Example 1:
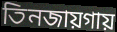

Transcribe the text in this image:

তিনজায়গায়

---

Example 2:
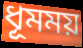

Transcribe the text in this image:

ধূমময়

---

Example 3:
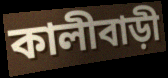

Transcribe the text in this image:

কালীবাড়ী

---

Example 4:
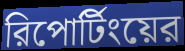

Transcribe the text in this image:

রিপোর্টিংয়ের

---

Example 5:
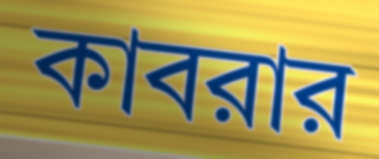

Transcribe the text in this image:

কাবরার